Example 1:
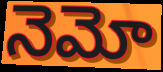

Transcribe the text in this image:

నెమో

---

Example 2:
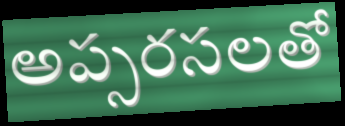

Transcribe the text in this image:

అప్సరసలతో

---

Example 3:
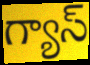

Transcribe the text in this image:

గ్యాస్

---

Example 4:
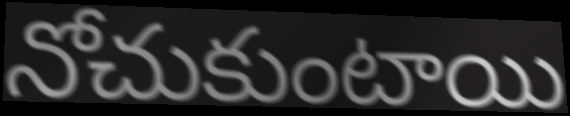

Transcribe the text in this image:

నోచుకుంటాయి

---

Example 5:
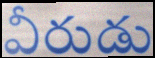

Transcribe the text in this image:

వీరుడు